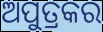
ଅପୁତ୍ରକର